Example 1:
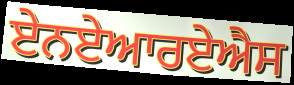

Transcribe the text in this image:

ਏਨਏਆਰਏਐਸ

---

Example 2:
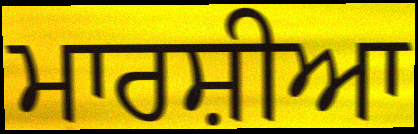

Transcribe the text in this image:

ਮਾਰਸ਼ੀਆ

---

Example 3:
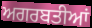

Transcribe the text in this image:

ਅਗਰਬਤੀਆਂ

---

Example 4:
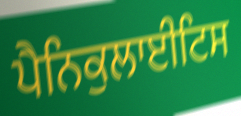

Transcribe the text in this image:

ਪੈਨਿਕੁਲਾਈਟਿਸ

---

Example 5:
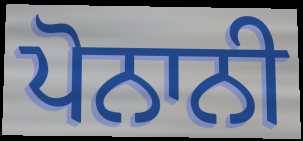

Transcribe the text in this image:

ਪੋਨਾਨੀ